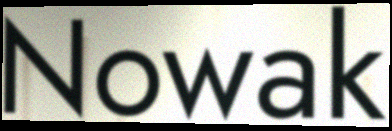
Nowak